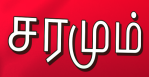
சரமும்